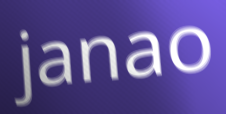
janao